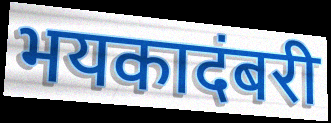
भयकादंबरी